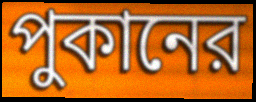
পুকানের